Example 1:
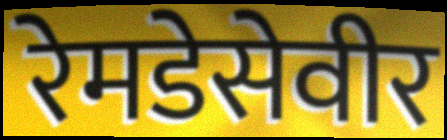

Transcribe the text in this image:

रेमडेसेवीर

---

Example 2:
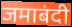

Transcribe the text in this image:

जमाबंदी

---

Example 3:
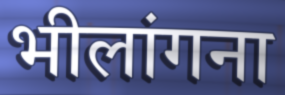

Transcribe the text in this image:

भीलांगना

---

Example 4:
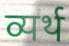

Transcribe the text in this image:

व्यर्थ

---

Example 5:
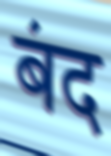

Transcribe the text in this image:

बंद